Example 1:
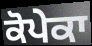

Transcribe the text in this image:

ਕੋਪੇਕਾ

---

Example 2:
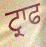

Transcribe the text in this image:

ਟ੍ਰਾਫ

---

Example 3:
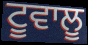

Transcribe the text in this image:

ਟੂਵਾਲੂ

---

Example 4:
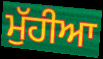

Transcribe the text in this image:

ਮੁੱਹੀਆ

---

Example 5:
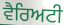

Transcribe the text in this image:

ਵੈਰਿਅਟੀ